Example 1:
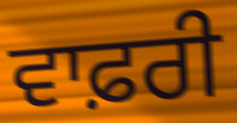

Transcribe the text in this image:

ਵਾਫ਼ਰੀ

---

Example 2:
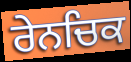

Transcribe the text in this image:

ਰੇਨਚਿਕ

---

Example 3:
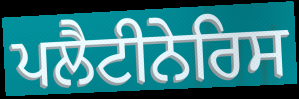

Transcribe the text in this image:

ਪਲੈਟੀਨੇਰਿਸ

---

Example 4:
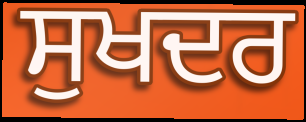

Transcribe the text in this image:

ਸੁਖਦਰ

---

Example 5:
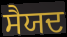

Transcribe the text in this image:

ਸੈਯਦ